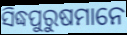
ସିଦ୍ଧପୁରୁଷମାନେ